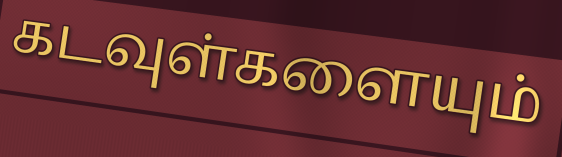
கடவுள்களையும்